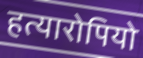
हत्यारोपियो